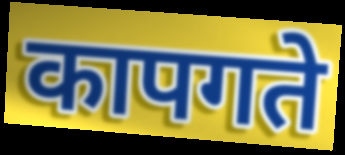
कापगते